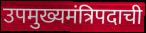
उपमुख्यमंत्रिपदाची